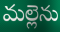
మల్లెను